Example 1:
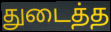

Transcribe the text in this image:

துடைத்த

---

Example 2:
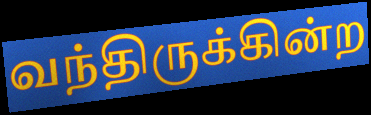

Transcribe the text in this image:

வந்திருக்கின்ற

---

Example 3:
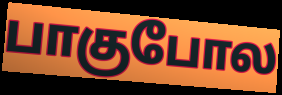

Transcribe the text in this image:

பாகுபோல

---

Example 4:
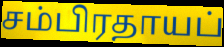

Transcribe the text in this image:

சம்பிரதாயப்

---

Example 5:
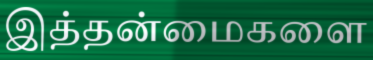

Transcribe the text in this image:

இத்தன்மைகளை